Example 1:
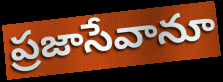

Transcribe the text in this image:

ప్రజాసేవానూ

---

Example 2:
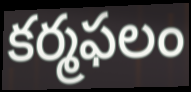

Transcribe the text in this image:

కర్మఫలం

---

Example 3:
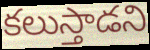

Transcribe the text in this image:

కలుస్తాడని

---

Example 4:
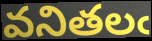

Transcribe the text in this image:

వనితలఁ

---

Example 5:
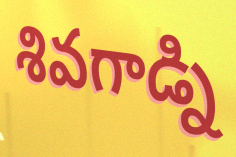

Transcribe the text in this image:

శివగాడ్ని